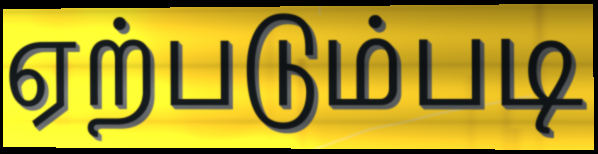
ஏற்படும்படி